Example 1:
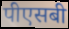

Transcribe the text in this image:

पीएसबी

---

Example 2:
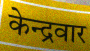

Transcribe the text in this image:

केन्‍द्रवार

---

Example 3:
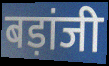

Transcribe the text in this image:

बड़ांजी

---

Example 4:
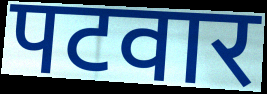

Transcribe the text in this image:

पटवार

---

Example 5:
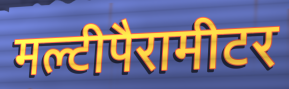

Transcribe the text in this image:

मल्टीपैरामीटर